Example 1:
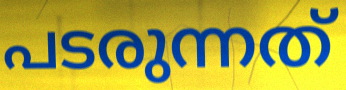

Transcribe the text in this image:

പടരുന്നത്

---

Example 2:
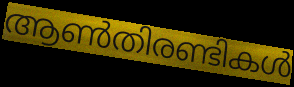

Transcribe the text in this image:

ആൺതിരണ്ടികൾ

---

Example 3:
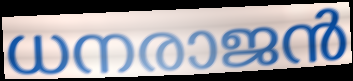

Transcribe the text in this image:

ധനരാജൻ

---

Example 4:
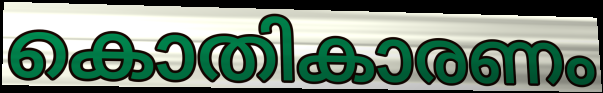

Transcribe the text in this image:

കൊതികാരണം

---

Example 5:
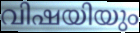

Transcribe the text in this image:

വിഷയിയും